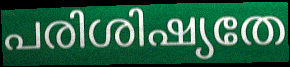
പരിശിഷ്യതേ